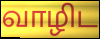
வாழிட